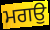
ਮਗਉ